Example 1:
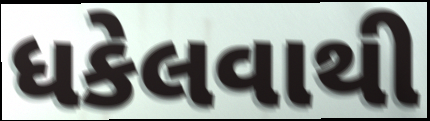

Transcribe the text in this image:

ધકેલવાથી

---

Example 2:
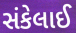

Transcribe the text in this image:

સંકેલાઈ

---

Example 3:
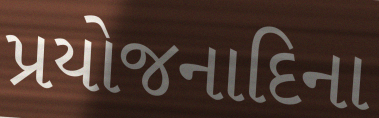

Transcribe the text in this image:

પ્રયોજનાદિના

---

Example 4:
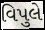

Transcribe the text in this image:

વિપુલે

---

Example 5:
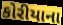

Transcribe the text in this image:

કોરીયાના